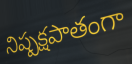
నిష్పక్షపాతంగా